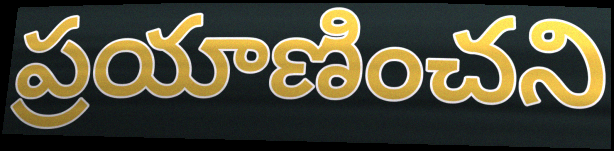
ప్రయాణించని